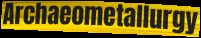
Archaeometallurgy